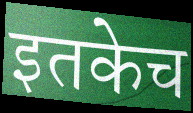
इतकेच